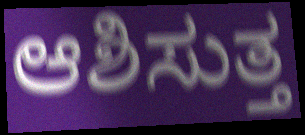
ಆಶಿಸುತ್ತ